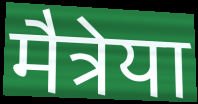
मैत्रेया